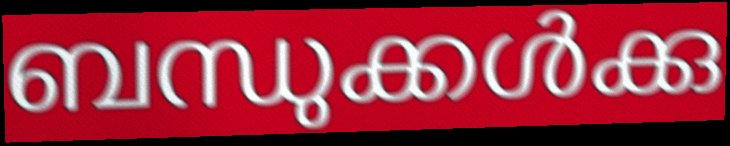
ബന്ധുക്കൾക്കു